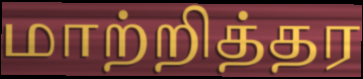
மாற்றித்தர